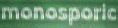
monosporic